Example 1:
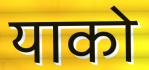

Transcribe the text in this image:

याको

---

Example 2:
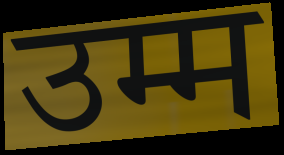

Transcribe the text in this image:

उम्म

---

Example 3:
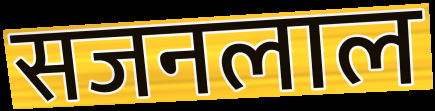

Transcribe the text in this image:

सजनलाल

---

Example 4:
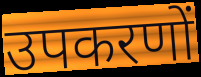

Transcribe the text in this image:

उपकरणों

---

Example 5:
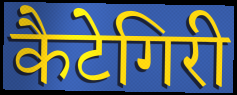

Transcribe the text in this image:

कैटेगिरी